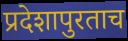
प्रदेशापुरताच